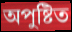
অপুষ্টিত